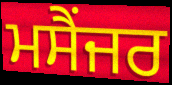
ਮਸੈਂਜਰ